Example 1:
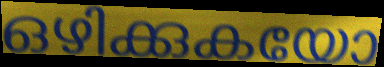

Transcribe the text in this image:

ഒഴിക്കുകയോ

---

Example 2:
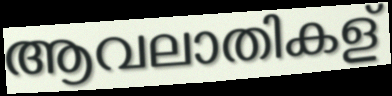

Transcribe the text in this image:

ആവലാതികള്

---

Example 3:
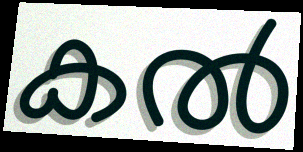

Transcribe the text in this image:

കൽ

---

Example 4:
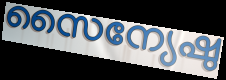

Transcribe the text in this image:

സൈന്യേഷു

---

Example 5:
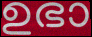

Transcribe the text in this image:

ഉഭാ